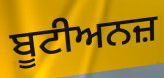
ਬੂਟੀਅਨਜ਼